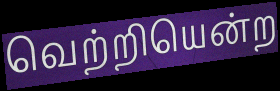
வெற்றியென்ற